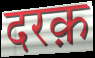
दरक़